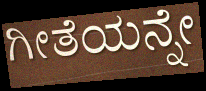
ಗೀತೆಯನ್ನೇ